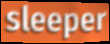
sleeper